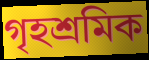
গৃহশ্রমিক